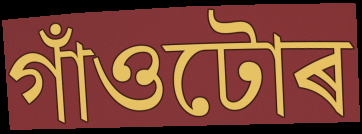
গাঁওটোৰ